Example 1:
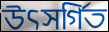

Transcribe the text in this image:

উৎসর্গিত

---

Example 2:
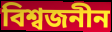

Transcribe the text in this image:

বিশ্বজনীন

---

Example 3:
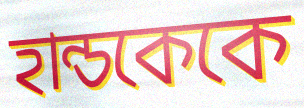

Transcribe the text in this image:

হান্ডকেকে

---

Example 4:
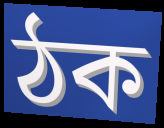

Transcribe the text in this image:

ঠক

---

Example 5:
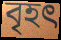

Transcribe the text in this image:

বৃহৎ